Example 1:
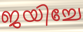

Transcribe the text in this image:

ജയിച്ചേ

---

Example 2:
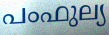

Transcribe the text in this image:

പംഫുല്യ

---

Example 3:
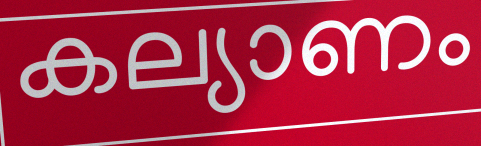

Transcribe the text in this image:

കല്യാണം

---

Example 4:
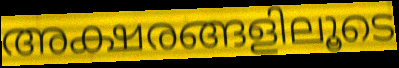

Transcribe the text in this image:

അക്ഷരങ്ങളിലൂടെ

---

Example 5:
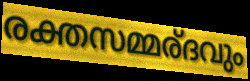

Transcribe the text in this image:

രക്തസമ്മര്ദവും